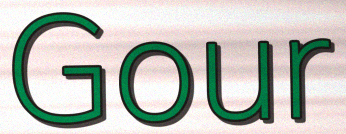
Gour